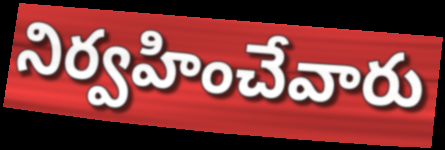
నిర్వహించేవారు